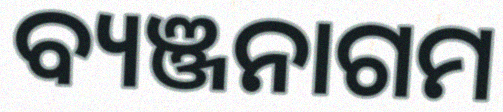
ବ୍ୟଞ୍ଜନାଗମ